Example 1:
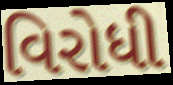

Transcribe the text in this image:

વિરોધી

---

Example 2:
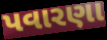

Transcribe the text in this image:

પવારણા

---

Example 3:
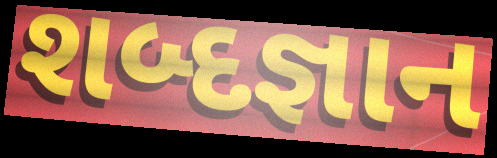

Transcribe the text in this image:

શબ્દજ્ઞાન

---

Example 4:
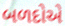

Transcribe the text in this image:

બળદોએ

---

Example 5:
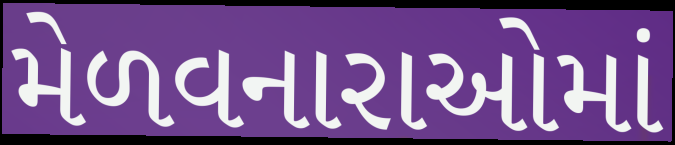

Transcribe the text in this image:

મેળવનારાઓમાં